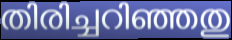
തിരിച്ചറിഞ്ഞതു